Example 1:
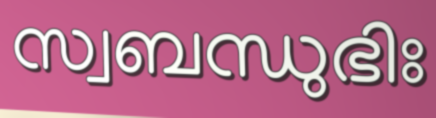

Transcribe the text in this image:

സ്വബന്ധുഭിഃ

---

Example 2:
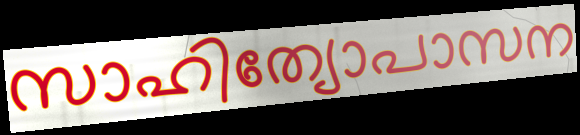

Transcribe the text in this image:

സാഹിത്യോപാസന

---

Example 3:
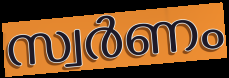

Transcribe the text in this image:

സ്വർണം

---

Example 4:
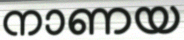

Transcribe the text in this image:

നാണയ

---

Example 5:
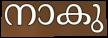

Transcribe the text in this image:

നാകു